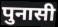
पुनासी